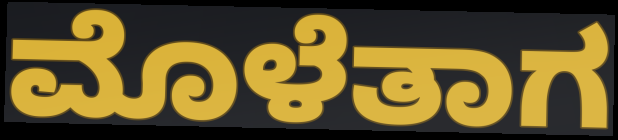
ಮೊಳೆತಾಗ